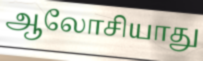
ஆலோசியாது